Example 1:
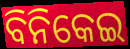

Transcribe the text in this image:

ବିନିକେଇ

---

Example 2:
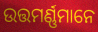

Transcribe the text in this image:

ଉତ୍ତମର୍ଣ୍ଣମାନେ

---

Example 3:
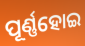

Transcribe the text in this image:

ପୂର୍ଣ୍ଣହୋଇ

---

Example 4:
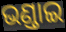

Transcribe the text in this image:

ଭଣ୍ଡାଇ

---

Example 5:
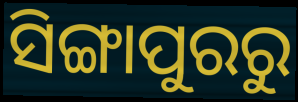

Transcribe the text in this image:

ସିଙ୍ଗାପୁରରୁ